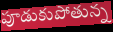
పూడుకుపోతున్న